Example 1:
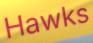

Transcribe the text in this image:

Hawks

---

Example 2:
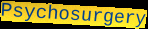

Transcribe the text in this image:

Psychosurgery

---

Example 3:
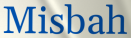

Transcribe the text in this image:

Misbah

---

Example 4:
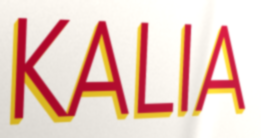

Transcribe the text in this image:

KALIA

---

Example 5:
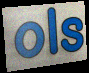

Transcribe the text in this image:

ols